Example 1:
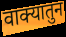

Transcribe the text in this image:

वाक्यातुन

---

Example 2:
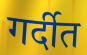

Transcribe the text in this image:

गर्दीत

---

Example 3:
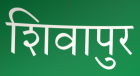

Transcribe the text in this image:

शिवापुर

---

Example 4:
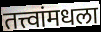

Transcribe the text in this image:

तत्त्वांमधला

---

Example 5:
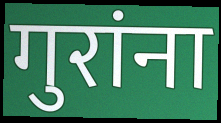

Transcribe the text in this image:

गुरांना